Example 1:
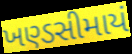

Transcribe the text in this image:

ખણ્ડસીમાયં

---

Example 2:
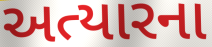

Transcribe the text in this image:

અત્યારના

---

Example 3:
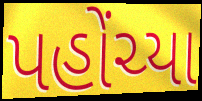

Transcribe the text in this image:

પહોંચ્યા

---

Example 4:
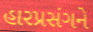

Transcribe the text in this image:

હારપ્રસંગને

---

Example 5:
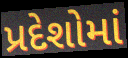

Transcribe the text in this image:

પ્રદેશોમાં